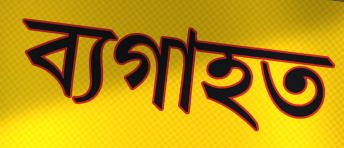
ব্যগাহত